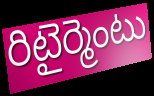
రిటైర్మెంటు